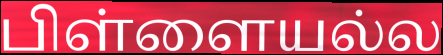
பிள்ளையல்ல